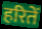
हरितें